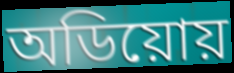
অডিয়োয়